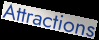
Attractions